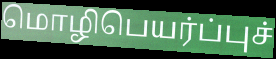
மொழிபெயர்ப்புச்